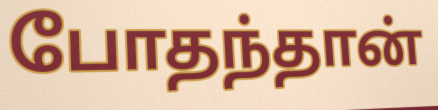
போதந்தான்